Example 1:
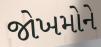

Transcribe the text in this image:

જોખમોને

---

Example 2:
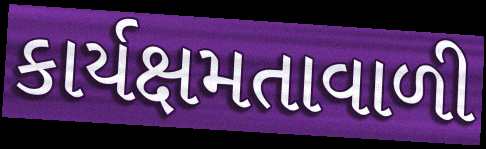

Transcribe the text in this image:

કાર્યક્ષમતાવાળી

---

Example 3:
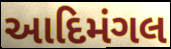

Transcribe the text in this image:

આદિમંગલ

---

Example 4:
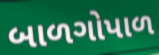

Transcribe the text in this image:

બાળગોપાળ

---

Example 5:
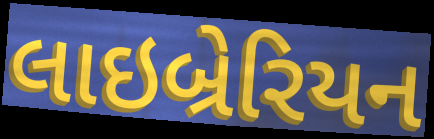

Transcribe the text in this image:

લાઇબ્રેરિયન